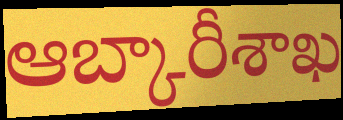
ఆబ్కారీశాఖ